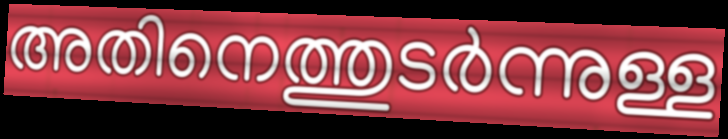
അതിനെത്തുടർന്നുള്ള